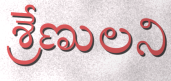
శ్రేణులని